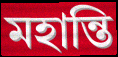
মহান্তি